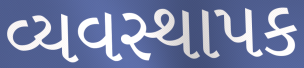
વ્યવસ્થાપક